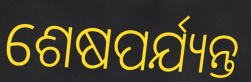
ଶେଷପର୍ଯ୍ୟନ୍ତ